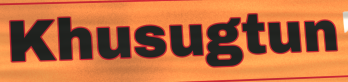
Khusugtun